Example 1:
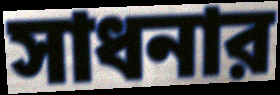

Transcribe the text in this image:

সাধনার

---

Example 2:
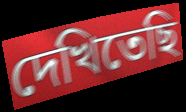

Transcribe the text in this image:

দেখিতেছি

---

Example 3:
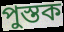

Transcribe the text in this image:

পুস্তক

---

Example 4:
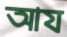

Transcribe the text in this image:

আয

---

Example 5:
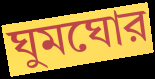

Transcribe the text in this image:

ঘুমঘোর